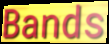
Bands